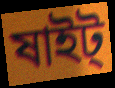
ষাইট্